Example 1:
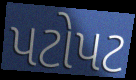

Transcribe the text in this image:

પટોપટ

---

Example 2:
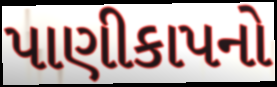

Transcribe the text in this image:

પાણીકાપનો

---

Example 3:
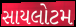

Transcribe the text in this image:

સાયલોટમ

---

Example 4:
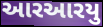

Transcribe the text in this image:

આરઆરયુ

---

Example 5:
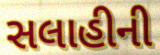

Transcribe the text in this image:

સલાહીની